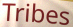
Tribes